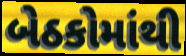
બેઠકોમાંથી